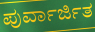
ಪುರ್ವಾರ್ಜಿತ